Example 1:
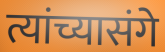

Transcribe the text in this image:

त्यांच्यासंगे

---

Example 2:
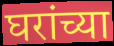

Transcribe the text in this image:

घरांच्या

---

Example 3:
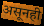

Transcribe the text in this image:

असूनही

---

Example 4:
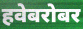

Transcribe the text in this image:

हवेबरोबर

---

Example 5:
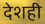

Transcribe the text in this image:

देशही